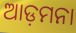
ଆଡ଼ମନା